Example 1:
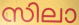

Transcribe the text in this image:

സിലാ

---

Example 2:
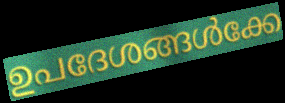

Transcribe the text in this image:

ഉപദേശങ്ങൾക്കേ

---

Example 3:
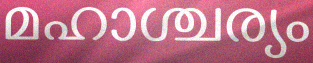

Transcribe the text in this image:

മഹാശ്ചര്യം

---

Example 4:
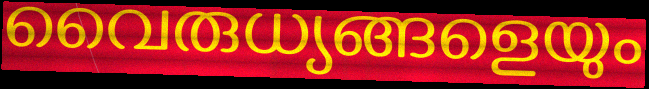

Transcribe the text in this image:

വൈരുധ്യങ്ങളെയും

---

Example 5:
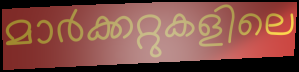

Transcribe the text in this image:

മാർക്കറ്റുകളിലെ